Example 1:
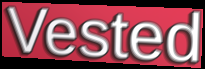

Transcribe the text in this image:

Vested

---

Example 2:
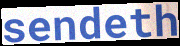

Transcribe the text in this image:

sendeth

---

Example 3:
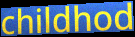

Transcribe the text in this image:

childhod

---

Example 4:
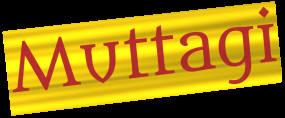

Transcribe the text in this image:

Muttagi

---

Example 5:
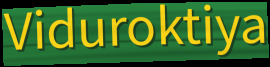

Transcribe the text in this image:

Viduroktiya